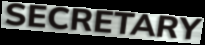
SECRETARY